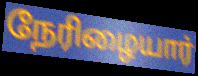
நேரிழையார்